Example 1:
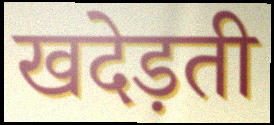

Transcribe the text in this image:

खदेड़ती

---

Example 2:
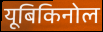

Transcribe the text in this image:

यूबिकिनोल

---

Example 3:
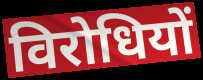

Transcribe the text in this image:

विरोधियों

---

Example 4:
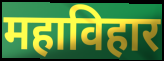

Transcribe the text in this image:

महाविहार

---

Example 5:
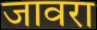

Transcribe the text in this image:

जावरा